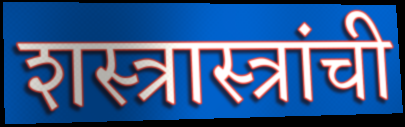
शस्त्रास्त्रांची